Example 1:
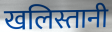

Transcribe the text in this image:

खलिस्तानी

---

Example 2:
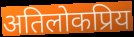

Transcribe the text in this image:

अतिलोकप्रिय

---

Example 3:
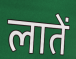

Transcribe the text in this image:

लातें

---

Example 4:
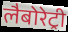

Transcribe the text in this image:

लैबोरेट्री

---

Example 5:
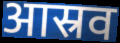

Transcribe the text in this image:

आस्रव